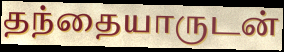
தந்தையாருடன்